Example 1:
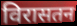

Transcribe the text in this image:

विरासतन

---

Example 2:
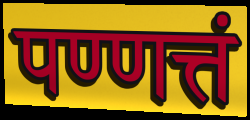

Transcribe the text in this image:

पण्णत्तं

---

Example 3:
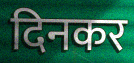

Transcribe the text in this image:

दिनकर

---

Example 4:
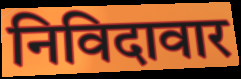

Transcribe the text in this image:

निविदावार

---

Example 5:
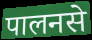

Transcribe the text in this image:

पालनसे